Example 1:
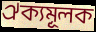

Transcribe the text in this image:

ঐক্যমূলক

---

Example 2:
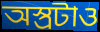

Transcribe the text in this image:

অস্ত্রটাও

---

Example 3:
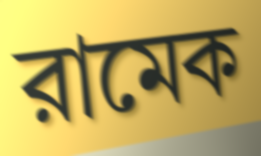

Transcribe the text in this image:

রামেক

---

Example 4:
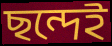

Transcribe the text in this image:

ছন্দেই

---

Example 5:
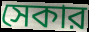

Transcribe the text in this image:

সেকার